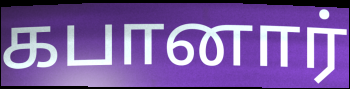
கபானார்